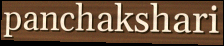
panchakshari